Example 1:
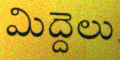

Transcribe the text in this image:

మిద్దెలు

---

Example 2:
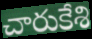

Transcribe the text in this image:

చారుకేశి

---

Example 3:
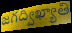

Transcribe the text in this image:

జగద్విఖ్యాతి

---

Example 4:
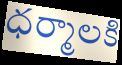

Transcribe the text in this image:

ధర్మాలకి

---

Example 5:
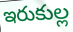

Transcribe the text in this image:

ఇరుకుల్ల